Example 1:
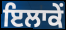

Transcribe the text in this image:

ਇਲਾਕੇਂ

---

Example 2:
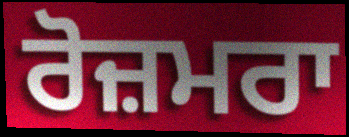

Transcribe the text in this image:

ਰੋਜ਼ਮਰਾ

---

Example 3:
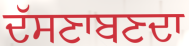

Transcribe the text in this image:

ਦੱਸਣਾਬਣਦਾ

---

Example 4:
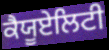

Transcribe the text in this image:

ਕੈਯੂਏਲਿਟੀ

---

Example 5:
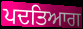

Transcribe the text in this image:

ਪਦਤਿਆਗ